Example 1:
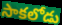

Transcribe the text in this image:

సాకలోడు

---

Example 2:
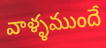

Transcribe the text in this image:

వాళ్ళముందే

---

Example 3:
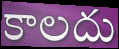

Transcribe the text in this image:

కాలదు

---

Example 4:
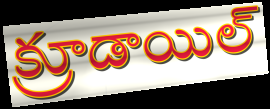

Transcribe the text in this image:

క్రూడాయిల్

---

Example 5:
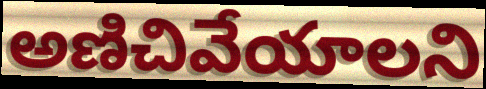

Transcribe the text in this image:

అణిచివేయాలని